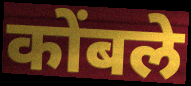
कोंबले